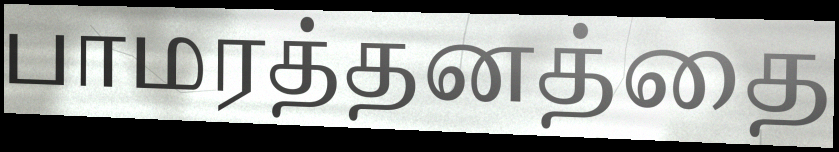
பாமரத்தனத்தை